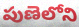
పుణెలోని